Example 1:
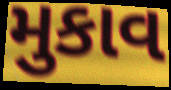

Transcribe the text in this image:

મુકાવ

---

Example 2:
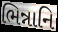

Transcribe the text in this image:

ભિન્નાનિ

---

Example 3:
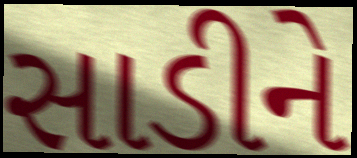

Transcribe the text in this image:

સાડીને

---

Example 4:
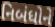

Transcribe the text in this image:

નિબંધોને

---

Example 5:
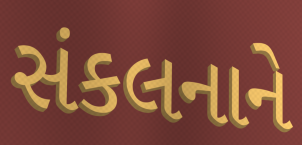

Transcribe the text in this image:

સંકલનાને